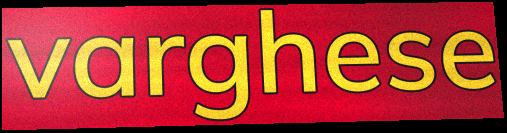
varghese